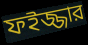
ফইজ্জার